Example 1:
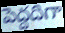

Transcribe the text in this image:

పెద్దదిగా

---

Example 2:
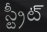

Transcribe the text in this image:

స్ట్రీట్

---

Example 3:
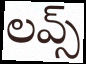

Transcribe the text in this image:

లవ్స్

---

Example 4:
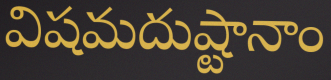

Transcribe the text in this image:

విషమదుష్టానాం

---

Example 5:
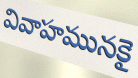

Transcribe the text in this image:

వివాహమునకై